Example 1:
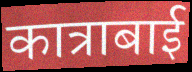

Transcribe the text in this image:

कात्राबाई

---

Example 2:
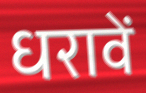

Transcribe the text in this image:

धरावें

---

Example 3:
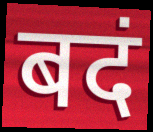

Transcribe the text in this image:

बदं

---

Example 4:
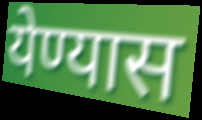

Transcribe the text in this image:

येण्यास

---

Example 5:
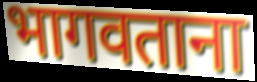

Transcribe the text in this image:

भागवताना